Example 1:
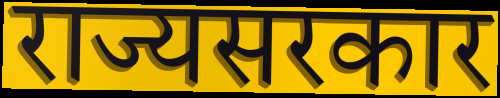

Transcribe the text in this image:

राज्यसरकार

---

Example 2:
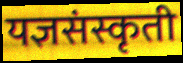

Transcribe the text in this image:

यज्ञसंस्कृती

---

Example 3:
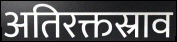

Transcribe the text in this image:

अतिरक्तस्राव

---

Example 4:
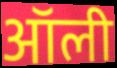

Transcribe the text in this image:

ऑली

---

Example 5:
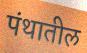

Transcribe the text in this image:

पंथातील